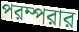
পরম্পরার